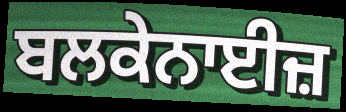
ਬਲਕੇਨਾਈਜ਼